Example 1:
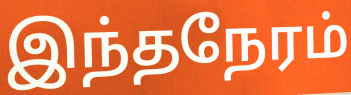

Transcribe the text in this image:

இந்தநேரம்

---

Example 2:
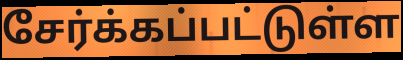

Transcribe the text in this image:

சேர்க்கப்பட்டுள்ள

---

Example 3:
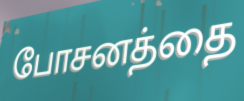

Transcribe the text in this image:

போசனத்தை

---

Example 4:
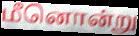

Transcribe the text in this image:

மீனொன்று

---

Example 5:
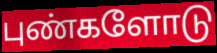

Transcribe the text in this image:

புண்களோடு